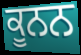
ਕੂਨਨ